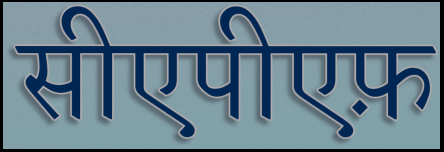
सीएपीएफ़